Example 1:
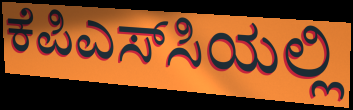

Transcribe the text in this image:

ಕೆಪಿಎಸ್‌ಸಿಯಲ್ಲಿ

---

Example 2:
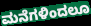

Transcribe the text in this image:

ಮನೆಗಳಿಂದಲೂ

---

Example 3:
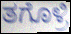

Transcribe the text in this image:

ತಗೊಳ್ರಿ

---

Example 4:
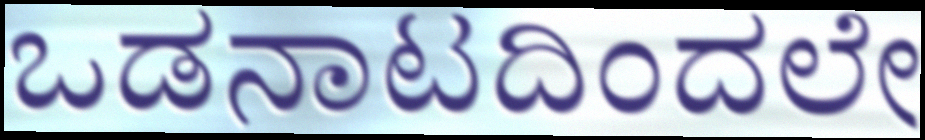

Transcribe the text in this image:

ಒಡನಾಟದಿಂದಲೇ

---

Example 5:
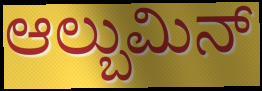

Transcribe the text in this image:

ಆಲ್ಬುಮಿನ್